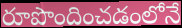
రూపొందించడంలోనే